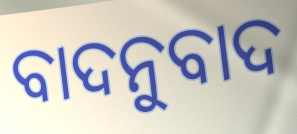
ବାଦନୁବାଦ